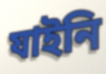
যাইনি